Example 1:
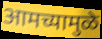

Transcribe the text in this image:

आमच्यामुळे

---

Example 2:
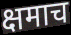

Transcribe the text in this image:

क्षमाच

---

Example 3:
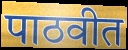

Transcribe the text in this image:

पाठवीत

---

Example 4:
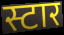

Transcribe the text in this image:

स्टार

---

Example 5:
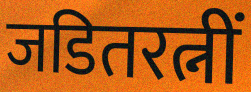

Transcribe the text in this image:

जडितरत्नीं